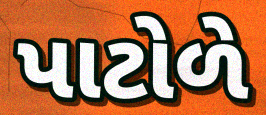
પાટોળે